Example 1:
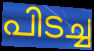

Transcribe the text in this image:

പിടച്ച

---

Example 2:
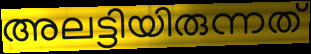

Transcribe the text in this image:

അലട്ടിയിരുന്നത്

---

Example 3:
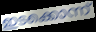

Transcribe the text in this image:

ഇടക്കൊന്ന്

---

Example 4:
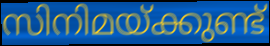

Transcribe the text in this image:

സിനിമയ്ക്കുണ്ട്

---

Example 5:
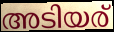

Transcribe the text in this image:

അടിയര്